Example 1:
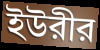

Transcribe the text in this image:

ইউরীর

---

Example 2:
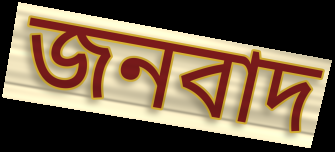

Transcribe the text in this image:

জনবাদ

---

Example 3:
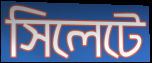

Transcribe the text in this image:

সিলেটে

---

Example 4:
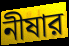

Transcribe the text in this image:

নীষার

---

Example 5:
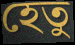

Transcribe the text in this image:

হেতু